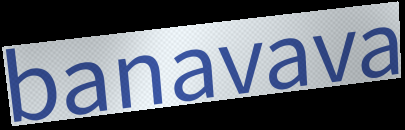
banavava